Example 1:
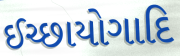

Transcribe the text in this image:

ઈચ્છાયોગાદિ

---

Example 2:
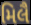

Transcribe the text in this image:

મિલૈ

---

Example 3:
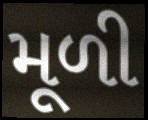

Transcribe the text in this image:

મૂળી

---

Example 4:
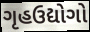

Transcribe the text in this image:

ગૃહઉદ્યોગો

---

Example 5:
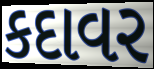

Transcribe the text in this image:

કદાવર